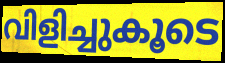
വിളിച്ചുകൂടെ